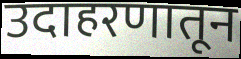
उदाहरणातून